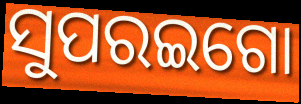
ସୁପରଇଗୋ